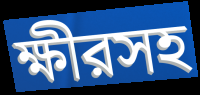
ক্ষীরসহ